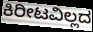
ಕಿರೀಟವಿಲ್ಲದ